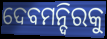
ଦେବମନ୍ଦିରକୁ